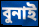
বুনাই